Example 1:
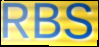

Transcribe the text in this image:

RBS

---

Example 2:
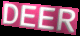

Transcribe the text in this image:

DEER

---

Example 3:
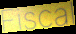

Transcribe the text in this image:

Fiscal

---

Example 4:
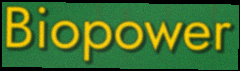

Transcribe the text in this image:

Biopower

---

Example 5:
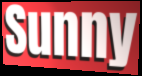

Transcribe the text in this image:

Sunny